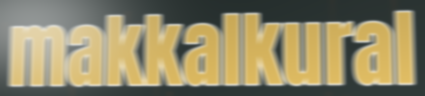
makkalkural